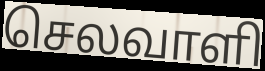
செலவாளி